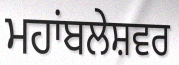
ਮਹਾਂਬਲੇਸ਼ਵਰ